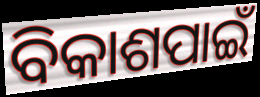
ବିକାଶପାଇଁ